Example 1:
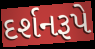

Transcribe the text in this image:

દર્શનરૂપે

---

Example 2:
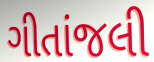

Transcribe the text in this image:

ગીતાંજલી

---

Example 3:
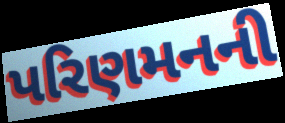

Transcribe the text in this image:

પરિણમનની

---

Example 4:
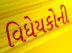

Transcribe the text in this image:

વિધેયકોની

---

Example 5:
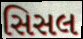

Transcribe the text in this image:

સિસલ